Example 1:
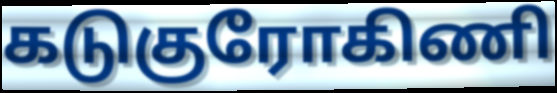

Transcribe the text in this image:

கடுகுரோகிணி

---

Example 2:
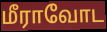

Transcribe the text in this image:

மீராவோட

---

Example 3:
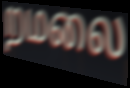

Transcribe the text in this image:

றமலை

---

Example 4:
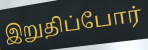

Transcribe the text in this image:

இறுதிப்போர்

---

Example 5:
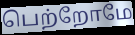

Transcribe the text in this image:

பெற்றோமே